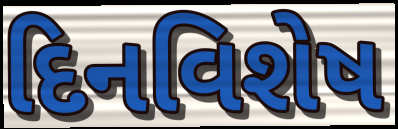
દિનવિશેષ